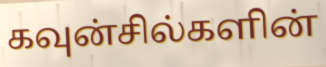
கவுன்சில்களின்